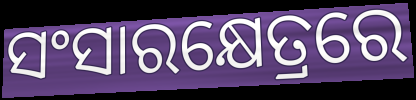
ସଂସାରକ୍ଷେତ୍ରରେ